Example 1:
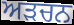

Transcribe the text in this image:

ਅੜਚਨ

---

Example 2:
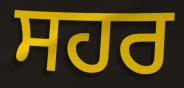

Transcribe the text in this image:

ਸਹਰ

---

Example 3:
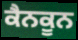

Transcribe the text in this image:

ਕੈਨਕੂਨ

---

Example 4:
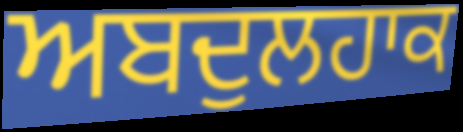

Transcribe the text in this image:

ਅਬਦੁਲਹਾਕ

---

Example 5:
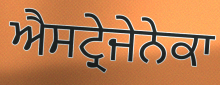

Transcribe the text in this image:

ਐਸਟ੍ਰੇਜੇਨੇਕਾ